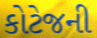
કોટેજની